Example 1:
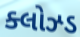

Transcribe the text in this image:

ક્લોઝ્ડ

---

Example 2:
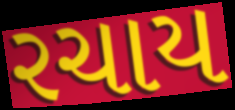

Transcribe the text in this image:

રચાય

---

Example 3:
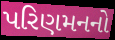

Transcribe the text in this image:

પરિણમનનો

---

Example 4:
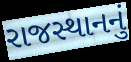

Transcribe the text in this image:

રાજસ્થાનનું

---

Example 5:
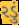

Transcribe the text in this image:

રડું